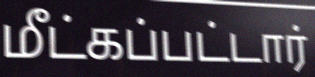
மீட்கப்பட்டார்